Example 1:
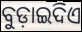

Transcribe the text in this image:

ବୁଡ଼ାଇଦିଏ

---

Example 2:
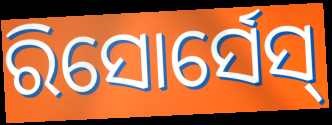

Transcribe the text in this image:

ରିସୋର୍ସେସ୍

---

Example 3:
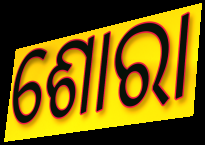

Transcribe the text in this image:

ଶୋରା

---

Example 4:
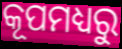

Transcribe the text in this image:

କୂପମଧ୍ୟରୁ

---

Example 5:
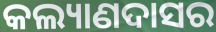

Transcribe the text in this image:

କଲ୍ୟାଣଦାସର